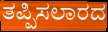
ತಪ್ಪಿಸಲಾರದ